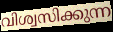
വിശ്വസിക്കുന്ന